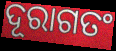
ଦୂରାଗତଂ